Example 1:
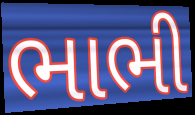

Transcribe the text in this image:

ભાભી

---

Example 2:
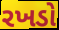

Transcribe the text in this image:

રખડો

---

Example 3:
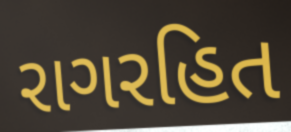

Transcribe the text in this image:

રાગરહિત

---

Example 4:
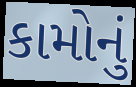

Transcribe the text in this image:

કામોનું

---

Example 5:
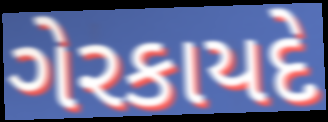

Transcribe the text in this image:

ગેરકાયદે